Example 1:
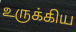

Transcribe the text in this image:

உருக்கிய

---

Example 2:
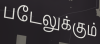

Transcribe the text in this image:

படேலுக்கும்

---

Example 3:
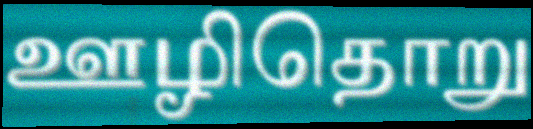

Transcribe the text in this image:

ஊழிதொறு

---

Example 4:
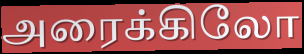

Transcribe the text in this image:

அரைக்கிலோ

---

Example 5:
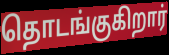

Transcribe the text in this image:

தொடங்குகிறார்